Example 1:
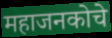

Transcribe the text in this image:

महाजनकोचे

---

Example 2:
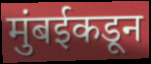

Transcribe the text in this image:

मुंबईकडून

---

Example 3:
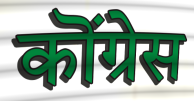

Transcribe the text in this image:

कॊंग्रेस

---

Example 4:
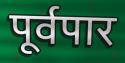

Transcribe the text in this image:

पूर्वपार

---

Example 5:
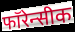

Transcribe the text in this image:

फॉरेन्सीक